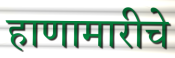
हाणामारीचे